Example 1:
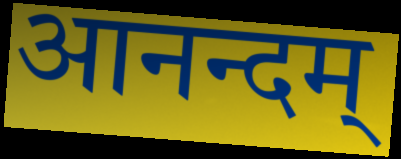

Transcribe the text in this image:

आनन्दम्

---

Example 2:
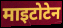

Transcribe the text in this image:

माइटोटेन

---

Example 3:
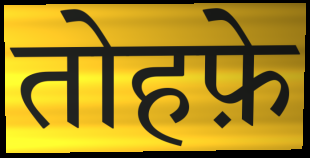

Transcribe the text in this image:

तोहफ़े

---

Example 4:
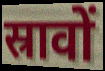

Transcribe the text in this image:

स्रावों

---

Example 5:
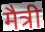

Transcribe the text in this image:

मैत्री